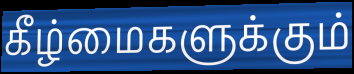
கீழ்மைகளுக்கும்